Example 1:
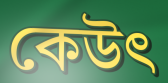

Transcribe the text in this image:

কেউৎ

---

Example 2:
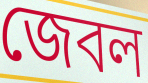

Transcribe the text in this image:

জেবল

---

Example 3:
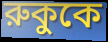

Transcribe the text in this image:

রুকুকে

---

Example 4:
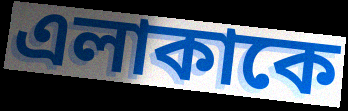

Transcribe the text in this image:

এলাকাকে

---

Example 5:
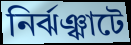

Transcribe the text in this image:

নির্ঝঞ্ঝাটে